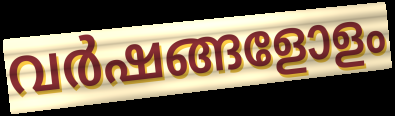
വർഷങ്ങളോളം